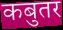
कबुतर